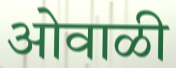
ओवाळी